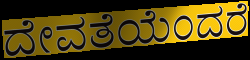
ದೇವತೆಯೆಂದರೆ